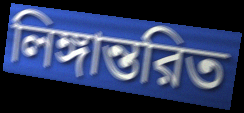
লিঙ্গান্তরিত